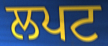
ਲਪਟ